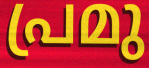
പ്രമു